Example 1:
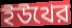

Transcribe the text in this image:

ইউথের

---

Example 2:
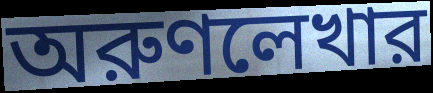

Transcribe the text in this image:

অরুণলেখার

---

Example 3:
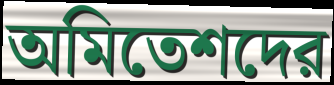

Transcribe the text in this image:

অমিতেশদের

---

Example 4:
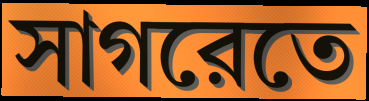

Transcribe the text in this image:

সাগরেতে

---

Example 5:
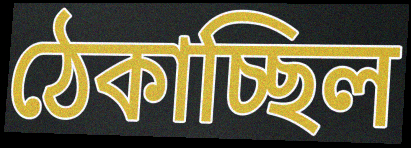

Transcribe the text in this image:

ঠেকাচ্ছিল